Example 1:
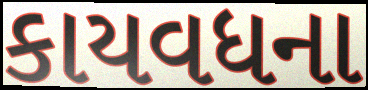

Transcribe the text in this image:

કાયવધના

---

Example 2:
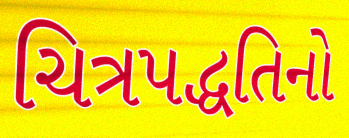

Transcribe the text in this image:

ચિત્રપદ્ધતિનો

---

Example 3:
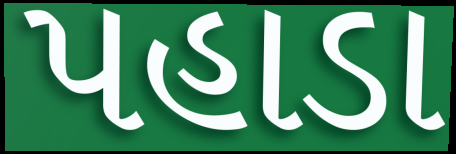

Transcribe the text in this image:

પહાડા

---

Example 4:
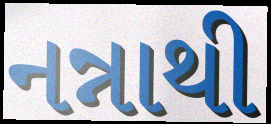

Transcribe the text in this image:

નન્નાથી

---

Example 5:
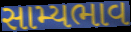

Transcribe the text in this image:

સામ્યભાવ